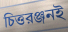
চিত্তরঞ্জনই